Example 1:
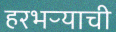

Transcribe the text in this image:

हरभऱ्याची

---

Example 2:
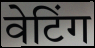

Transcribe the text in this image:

वेटिंग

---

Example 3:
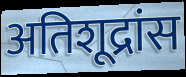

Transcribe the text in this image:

अतिशूद्रांस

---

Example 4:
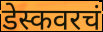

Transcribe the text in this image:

डेस्कवरचं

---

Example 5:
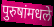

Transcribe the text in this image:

पुरुषांमधले